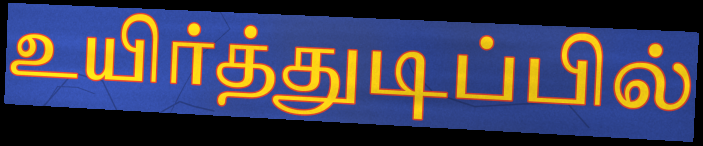
உயிர்த்துடிப்பில்